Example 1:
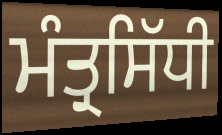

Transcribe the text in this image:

ਮੰਤ੍ਰਸਿੱਧੀ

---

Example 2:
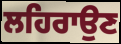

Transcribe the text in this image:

ਲਹਿਰਾਉਣ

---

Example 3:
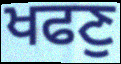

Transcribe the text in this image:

ਖਫਣੁ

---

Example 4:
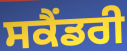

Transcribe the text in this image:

ਸਕੈਂਡਰੀ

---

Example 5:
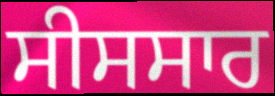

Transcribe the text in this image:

ਸੀਸਸਾਰ